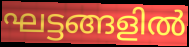
ഘട്ടങ്ങളിൽ